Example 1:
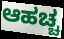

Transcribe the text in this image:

ಆಹಚ್ಚ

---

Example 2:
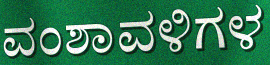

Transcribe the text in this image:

ವಂಶಾವಳಿಗಳ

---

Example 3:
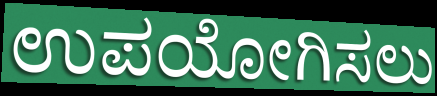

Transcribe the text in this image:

ಉಪಯೋಗಿಸಲು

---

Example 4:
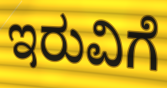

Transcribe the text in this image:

ಇರುವಿಗೆ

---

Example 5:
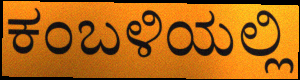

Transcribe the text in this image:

ಕಂಬಳಿಯಲ್ಲಿ